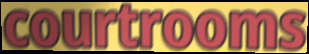
courtrooms